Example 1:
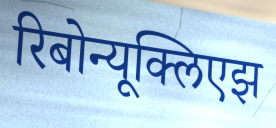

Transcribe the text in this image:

रिबोन्यूक्लिएझ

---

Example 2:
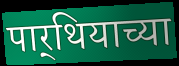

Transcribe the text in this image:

पार्थियाच्या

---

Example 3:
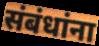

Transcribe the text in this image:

संबंधांना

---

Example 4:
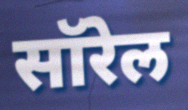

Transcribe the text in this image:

सॉरेल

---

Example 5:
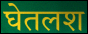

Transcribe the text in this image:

घेतलश